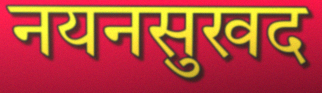
नयनसुखद